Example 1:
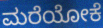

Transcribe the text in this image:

ಮರೆಯೋಕೆ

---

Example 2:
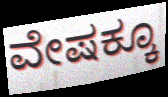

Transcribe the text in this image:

ವೇಷಕ್ಕೂ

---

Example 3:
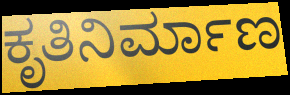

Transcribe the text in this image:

ಕೃತಿನಿರ್ಮಾಣ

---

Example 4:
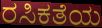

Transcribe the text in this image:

ರಸಿಕತೆಯ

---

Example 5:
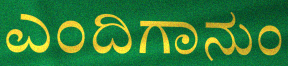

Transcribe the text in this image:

ಎಂದಿಗಾನುಂ